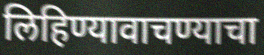
लिहिण्यावाचण्याचा